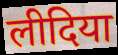
लीदिया